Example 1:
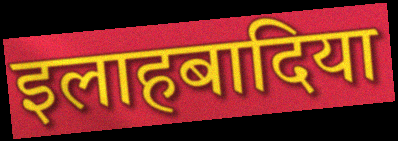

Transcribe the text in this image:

इलाहबादिया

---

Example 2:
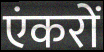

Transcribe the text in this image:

एंकरों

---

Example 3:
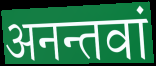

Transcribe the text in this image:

अनन्तवां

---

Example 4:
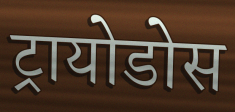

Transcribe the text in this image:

ट्रायोडोस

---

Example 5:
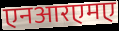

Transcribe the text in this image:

एनआरएमए